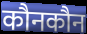
कौनकौन